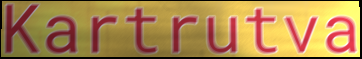
Kartrutva